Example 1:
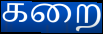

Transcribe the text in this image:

கறை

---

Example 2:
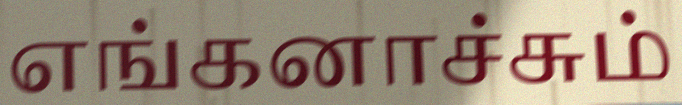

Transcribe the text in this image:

எங்கனாச்சும்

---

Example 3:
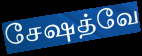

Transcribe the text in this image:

சேஷத்வே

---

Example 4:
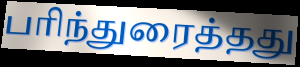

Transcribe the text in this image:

பரிந்துரைத்தது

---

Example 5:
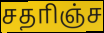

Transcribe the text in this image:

சதரிஞ்ச